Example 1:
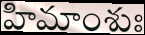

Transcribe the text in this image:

హిమాంశుః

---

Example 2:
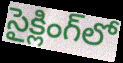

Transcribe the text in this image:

సైక్లింగ్‌లో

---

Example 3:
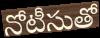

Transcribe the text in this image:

నోటీసుతో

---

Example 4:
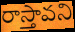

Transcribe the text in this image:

రాస్తావని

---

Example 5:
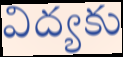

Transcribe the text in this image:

విద్యకు